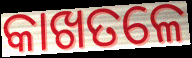
କାଖତଳେ